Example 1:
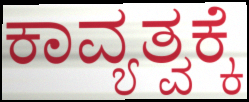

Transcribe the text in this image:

ಕಾವ್ಯತ್ವಕ್ಕೆ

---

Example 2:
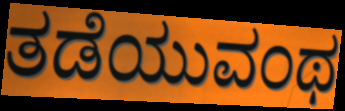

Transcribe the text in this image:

ತಡೆಯುವಂಥ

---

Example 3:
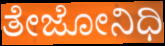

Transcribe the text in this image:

ತೇಜೋನಿಧಿ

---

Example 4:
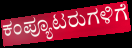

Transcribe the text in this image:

ಕಂಪ್ಯೂಟರುಗಳಿಗೆ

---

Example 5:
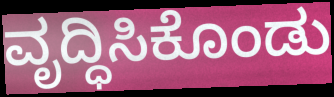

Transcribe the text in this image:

ವೃದ್ಧಿಸಿಕೊಂಡು